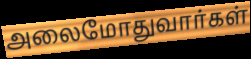
அலைமோதுவார்கள்